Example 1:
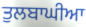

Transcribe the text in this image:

ਤੁਲਬਾਘੀਆ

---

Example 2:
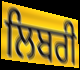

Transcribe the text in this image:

ਲਿਬਰੀ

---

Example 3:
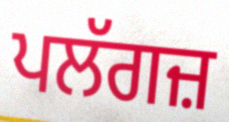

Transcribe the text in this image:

ਪਲੱਗਜ਼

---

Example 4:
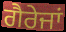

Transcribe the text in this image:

ਗੈਰੇਜਾਂ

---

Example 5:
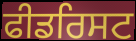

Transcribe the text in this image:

ਫੀਡਰਿਸਟ